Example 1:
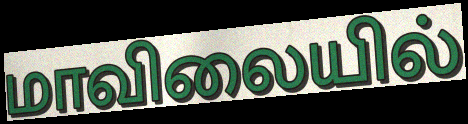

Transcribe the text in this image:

மாவிலையில்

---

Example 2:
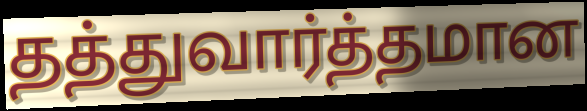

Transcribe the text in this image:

தத்துவார்த்தமான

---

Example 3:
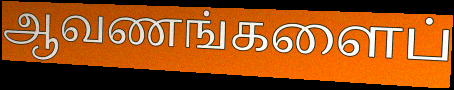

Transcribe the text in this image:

ஆவணங்களைப்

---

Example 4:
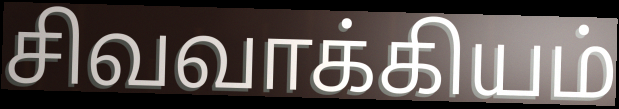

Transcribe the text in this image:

சிவவாக்கியம்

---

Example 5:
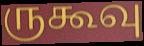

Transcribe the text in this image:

ருகூவு